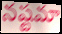
నష్టమా